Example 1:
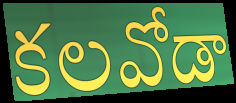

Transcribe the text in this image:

కలవోడా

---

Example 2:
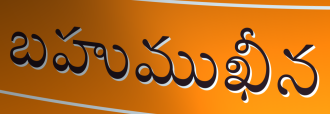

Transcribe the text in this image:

బహుముఖీన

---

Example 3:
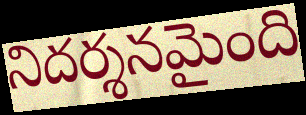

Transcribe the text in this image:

నిదర్శనమైంది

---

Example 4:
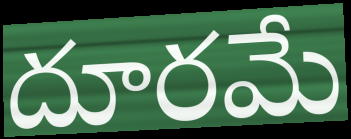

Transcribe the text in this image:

దూరమే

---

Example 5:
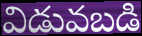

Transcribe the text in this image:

విడువబడి